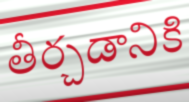
తీర్చడానికి